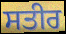
ਸਤੀਰ